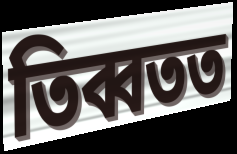
তিব্বতত